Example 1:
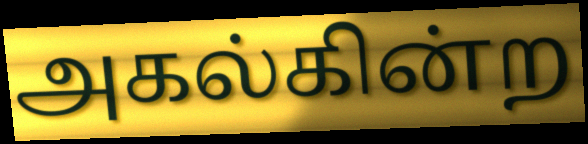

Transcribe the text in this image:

அகல்கின்ற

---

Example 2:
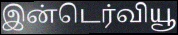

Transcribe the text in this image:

இன்டெர்வியூ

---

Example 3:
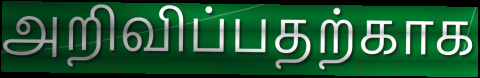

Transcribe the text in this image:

அறிவிப்பதற்காக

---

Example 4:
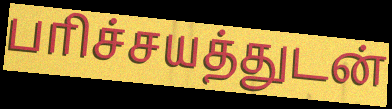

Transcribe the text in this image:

பரிச்சயத்துடன்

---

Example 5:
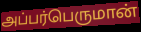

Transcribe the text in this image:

அப்பர்பெருமான்